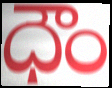
ధౌం